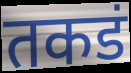
तकडं